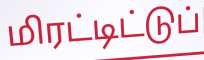
மிரட்டிட்டுப்